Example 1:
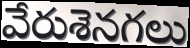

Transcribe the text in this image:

వేరుశెనగలు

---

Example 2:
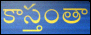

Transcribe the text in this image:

కాస్తంతా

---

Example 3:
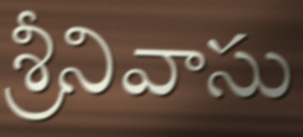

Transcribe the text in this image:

శ్రీనివాసు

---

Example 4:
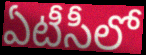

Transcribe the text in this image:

ఏటీసీలో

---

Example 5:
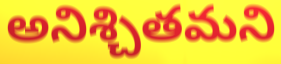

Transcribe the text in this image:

అనిశ్చితమని